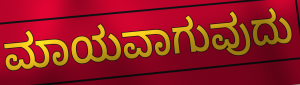
ಮಾಯವಾಗುವುದು